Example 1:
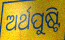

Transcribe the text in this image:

ଅର୍ଥପୁଷ୍ଟି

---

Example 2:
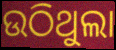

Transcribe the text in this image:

ଉଠିଥୁଲା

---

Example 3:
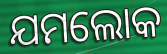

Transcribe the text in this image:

ଯମଲୋକ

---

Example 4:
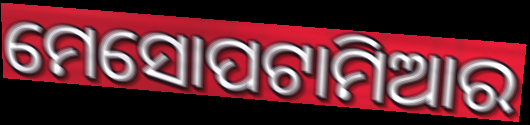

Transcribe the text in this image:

ମେସୋପଟାମିଆର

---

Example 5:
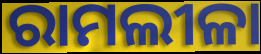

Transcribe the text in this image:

ରାମଲୀଳା